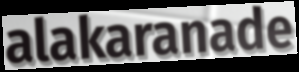
alakaranade